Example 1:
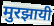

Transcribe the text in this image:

मुरझायी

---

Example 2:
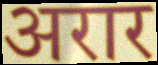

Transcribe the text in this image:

अरार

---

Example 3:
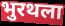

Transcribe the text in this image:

भुरथला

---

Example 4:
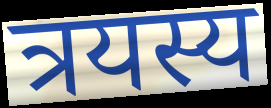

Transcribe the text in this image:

त्रयस्य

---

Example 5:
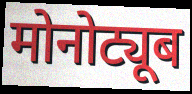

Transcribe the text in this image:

मोनोट्यूब